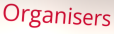
Organisers